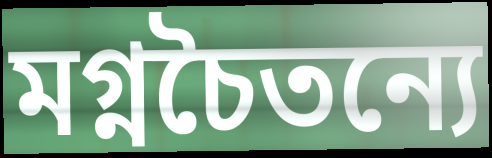
মগ্নচৈতন্যে